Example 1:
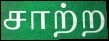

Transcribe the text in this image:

சாற்ற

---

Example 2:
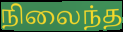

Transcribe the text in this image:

நிலைந்த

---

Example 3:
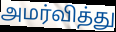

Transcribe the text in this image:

அமர்வித்து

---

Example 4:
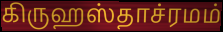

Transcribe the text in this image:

கிருஹஸ்தாச்ரமம்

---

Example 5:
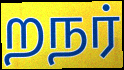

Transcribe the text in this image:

றநர்